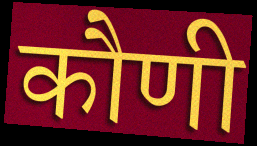
कौणी